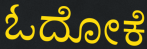
ಓದೋಕೆ